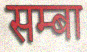
सम्बा